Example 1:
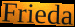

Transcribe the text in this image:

Frieda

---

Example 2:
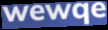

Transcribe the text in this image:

wewqe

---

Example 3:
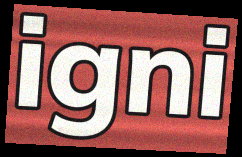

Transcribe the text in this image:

igni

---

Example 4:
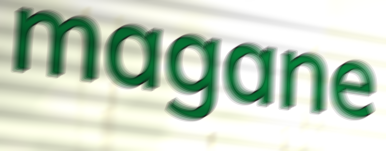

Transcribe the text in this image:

magane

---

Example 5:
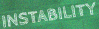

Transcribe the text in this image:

INSTABILITY